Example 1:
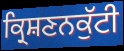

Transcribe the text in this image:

ਕ੍ਰਿਸ਼ਣਨਕੁੱਟੀ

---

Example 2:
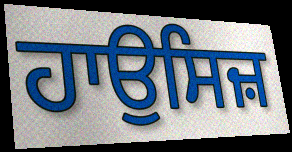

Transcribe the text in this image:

ਹਾਉਸਿਜ਼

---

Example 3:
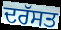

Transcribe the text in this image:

ਦਰੱਸਤ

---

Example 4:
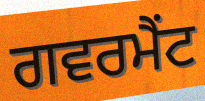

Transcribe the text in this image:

ਗਵਰਮੈਂਟ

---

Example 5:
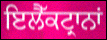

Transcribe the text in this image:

ਇਲੈੱਕਟ੍ਰਾਨਾਂ